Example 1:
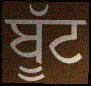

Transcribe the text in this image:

ਬੂੱਟ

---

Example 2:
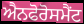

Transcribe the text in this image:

ਐਨਫੋਰੋਸਮੈਂਟ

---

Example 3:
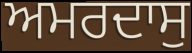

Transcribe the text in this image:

ਅਮਰਦਾਸੁ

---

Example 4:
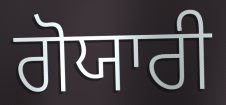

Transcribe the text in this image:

ਗੋਯਾਰੀ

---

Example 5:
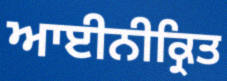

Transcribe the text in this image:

ਆਈਨੀਕ੍ਰਿਤ